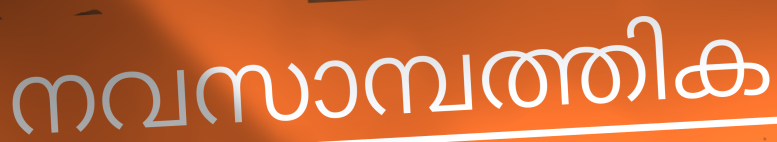
നവസാമ്പത്തിക